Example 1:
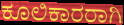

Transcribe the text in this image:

ಕೂಲಿಕಾರರಾಗಿ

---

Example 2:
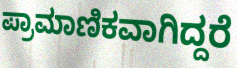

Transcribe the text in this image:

ಪ್ರಾಮಾಣಿಕವಾಗಿದ್ದರೆ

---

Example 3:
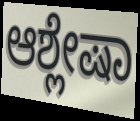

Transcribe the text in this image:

ಆಶ್ಲೇಷಾ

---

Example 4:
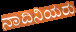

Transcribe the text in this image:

ನಾದಿನಿಯರು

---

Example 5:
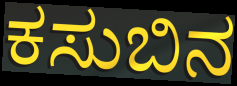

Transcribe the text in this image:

ಕಸುಬಿನ